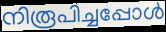
നിരൂപിച്ചപ്പോൾ